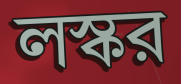
লস্কর